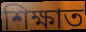
শিক্ষাত